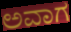
ಅವಾಗ